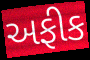
અફીક